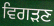
ਵਿਗੜਣ